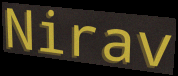
Nirav